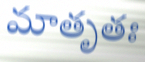
మాతృతః